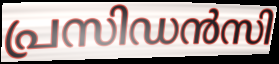
പ്രസിഡൻസി